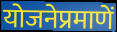
योजनेप्रमाणें